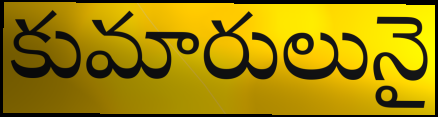
కుమారులునై